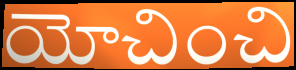
యోచించి